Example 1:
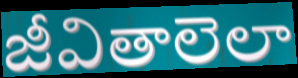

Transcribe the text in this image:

జీవితాలెలా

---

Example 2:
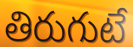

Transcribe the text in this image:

తిరుగుటే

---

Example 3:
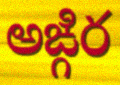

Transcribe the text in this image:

అఙ్గిర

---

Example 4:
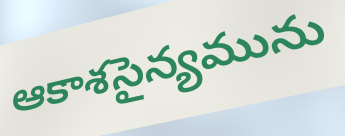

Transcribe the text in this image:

ఆకాశసైన్యమును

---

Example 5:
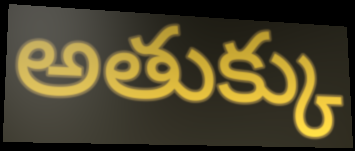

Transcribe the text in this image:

అతుక్కు